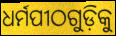
ଧର୍ମପୀଠଗୁଡ଼ିକୁ